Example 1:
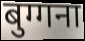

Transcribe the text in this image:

बुग्गना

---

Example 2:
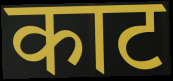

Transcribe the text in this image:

काट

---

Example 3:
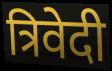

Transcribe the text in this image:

त्रिवेदी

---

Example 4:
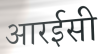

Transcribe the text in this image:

आरईसी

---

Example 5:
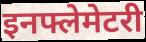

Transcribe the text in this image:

इनफ्लेमेटरी